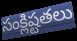
సంక్లిష్టతలు